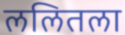
ललितला